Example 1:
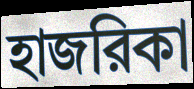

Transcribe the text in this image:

হাজরিকা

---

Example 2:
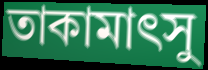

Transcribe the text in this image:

তাকামাৎসু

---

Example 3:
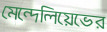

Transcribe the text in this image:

মেন্দেলিয়েভের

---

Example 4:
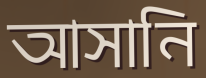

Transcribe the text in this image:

আসানি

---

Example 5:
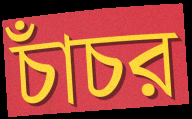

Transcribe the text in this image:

চাঁচর